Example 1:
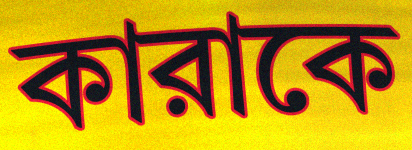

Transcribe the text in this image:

কারাকে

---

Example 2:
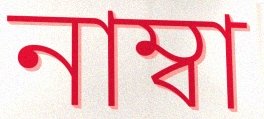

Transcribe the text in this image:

নাম্বা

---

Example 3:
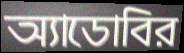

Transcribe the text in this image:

অ্যাডোবির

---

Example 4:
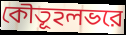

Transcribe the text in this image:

কৌতূহলভরে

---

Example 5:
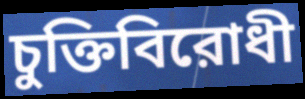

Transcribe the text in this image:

চুক্তিবিরোধী